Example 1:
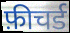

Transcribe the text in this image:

फ़ीचर्ड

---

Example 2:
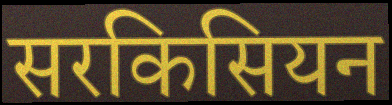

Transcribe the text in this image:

सरकिसियन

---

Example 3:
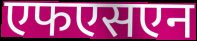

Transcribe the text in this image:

एफएसएन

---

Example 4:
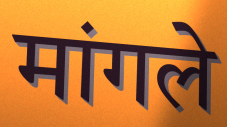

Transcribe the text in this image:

मांगले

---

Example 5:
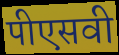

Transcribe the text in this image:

पीएसवी